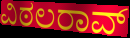
ವಿಠಲರಾವ್